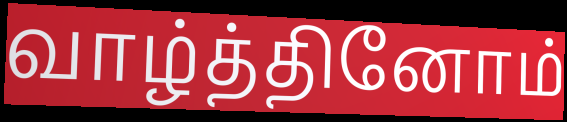
வாழ்த்தினோம்